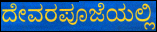
ದೇವರಪೂಜೆಯಲ್ಲಿ